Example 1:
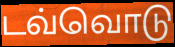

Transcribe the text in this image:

டவ்வொடு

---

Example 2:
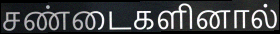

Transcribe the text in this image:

சண்டைகளினால்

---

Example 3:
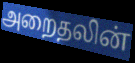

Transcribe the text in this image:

அறைதலின்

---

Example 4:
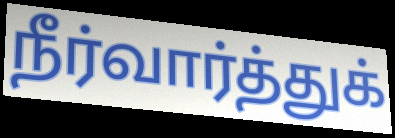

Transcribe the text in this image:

நீர்வார்த்துக்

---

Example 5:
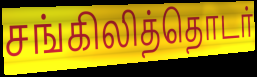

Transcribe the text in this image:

சங்கிலித்தொடர்